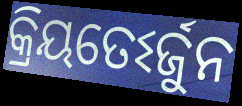
କ୍ରିୟତେଽର୍ଜୁନ